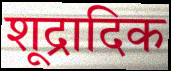
शूद्रादिक